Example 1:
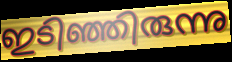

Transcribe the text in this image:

ഇടിഞ്ഞിരുന്നു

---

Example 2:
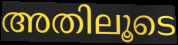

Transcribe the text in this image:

അതിലൂടെ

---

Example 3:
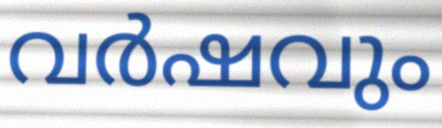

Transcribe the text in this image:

വർഷവും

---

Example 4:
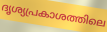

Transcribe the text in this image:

ദൃശ്യപ്രകാശത്തിലെ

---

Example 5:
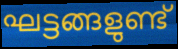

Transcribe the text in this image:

ഘട്ടങ്ങളുണ്ട്